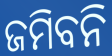
ଜମିବନି